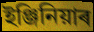
ইঞ্জিনিয়াৰ